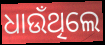
ଧାଉଁଥିଲେ